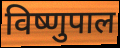
विष्णुपाल